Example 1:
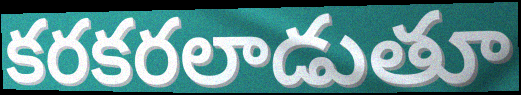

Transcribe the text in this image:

కరకరలాడుతూ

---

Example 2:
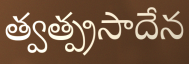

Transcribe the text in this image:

త్వత్ప్రసాదేన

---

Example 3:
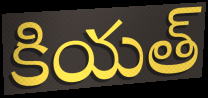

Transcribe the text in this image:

కియత్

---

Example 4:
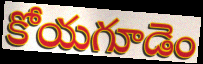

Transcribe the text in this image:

కోయగూడెం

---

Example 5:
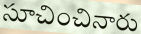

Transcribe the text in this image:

సూచించినారు